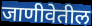
जाणीवेतील